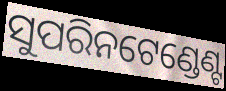
ସୁପରିନଟେଣ୍ଡେଣ୍ଟ